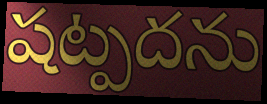
షట్పదను